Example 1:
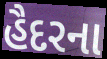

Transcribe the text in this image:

હૈદરના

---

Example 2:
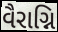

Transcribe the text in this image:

વૈરાગ્નિ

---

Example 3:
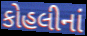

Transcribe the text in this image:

કોહલીનાં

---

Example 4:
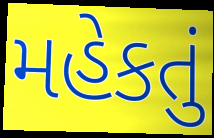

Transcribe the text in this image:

મહેકતું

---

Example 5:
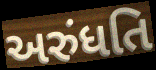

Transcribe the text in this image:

અરુંધતિ